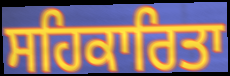
ਸਹਿਕਾਰਿਤਾ